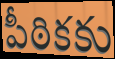
పీఠికకు